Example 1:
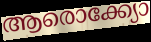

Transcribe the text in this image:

ആരൊക്ക്യോ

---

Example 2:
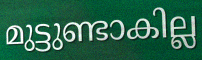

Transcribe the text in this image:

മുട്ടുണ്ടാകില്ല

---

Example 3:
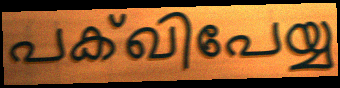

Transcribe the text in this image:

പക്ഖിപേയ്യ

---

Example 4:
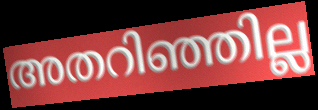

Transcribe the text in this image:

അതറിഞ്ഞില്ല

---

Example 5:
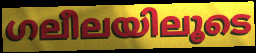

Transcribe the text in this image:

ഗലീലയിലൂടെ